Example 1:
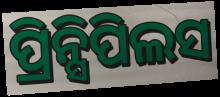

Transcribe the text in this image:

ପ୍ରିନ୍ସିପିଲସ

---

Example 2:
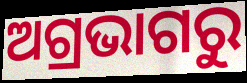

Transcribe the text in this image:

ଅଗ୍ରଭାଗରୁ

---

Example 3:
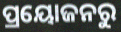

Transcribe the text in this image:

ପ୍ରୟୋଜନରୁ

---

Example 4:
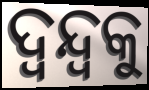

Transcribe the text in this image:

ଦ୍ୱନ୍ଦ୍ୱକୁ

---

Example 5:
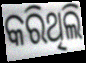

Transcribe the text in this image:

କରିଥିଲି